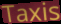
Taxis